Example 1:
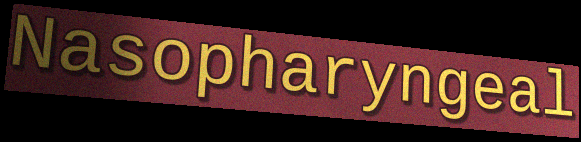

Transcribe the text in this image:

Nasopharyngeal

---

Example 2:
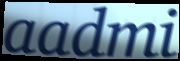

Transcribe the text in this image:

aadmi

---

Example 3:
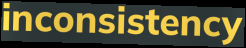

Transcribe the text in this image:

inconsistency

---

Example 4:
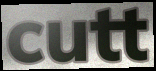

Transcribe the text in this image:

cutt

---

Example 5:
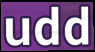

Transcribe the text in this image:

udd